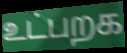
உட்பறக